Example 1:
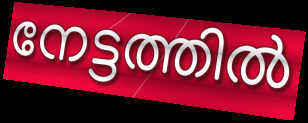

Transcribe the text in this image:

നേട്ടത്തിൽ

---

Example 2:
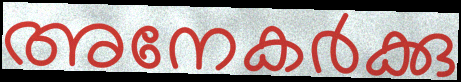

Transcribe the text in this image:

അനേകർക്കു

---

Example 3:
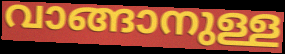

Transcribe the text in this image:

വാങ്ങാനുള്ള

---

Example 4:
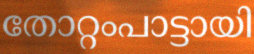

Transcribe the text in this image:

തോറ്റംപാട്ടായി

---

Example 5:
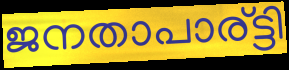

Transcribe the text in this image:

ജനതാപാര്ട്ടി